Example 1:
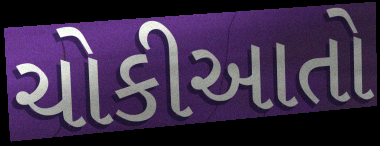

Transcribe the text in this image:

ચોકીઆતો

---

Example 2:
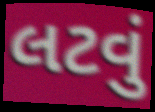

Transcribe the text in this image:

લટવું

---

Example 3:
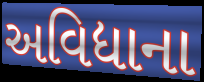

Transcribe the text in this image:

અવિદ્યાના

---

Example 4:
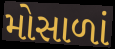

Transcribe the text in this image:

મોસાળાં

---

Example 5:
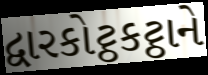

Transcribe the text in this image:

દ્વારકોટ્ઠકટ્ઠાને